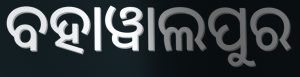
ବହାୱାଲପୁର